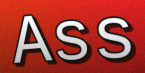
Ass